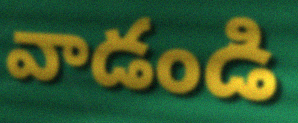
వాడండి